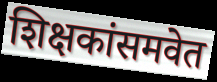
शिक्षकांसमवेत